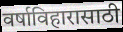
वर्षाविहारासाठी